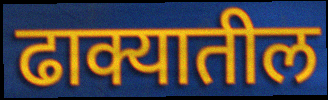
ढाक्यातील